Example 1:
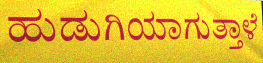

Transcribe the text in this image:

ಹುಡುಗಿಯಾಗುತ್ತಾಳೆ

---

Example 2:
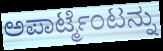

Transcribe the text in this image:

ಅಪಾರ್ಟ್ಮೆಂಟನ್ನು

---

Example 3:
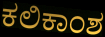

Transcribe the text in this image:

ಕಲಿಕಾಂಶ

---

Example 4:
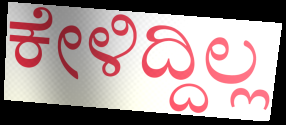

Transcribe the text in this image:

ಕೇಳಿದ್ದಿಲ್ಲ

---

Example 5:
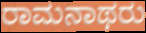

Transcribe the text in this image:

ರಾಮನಾಥರು